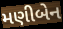
મણીબેન